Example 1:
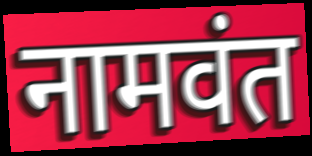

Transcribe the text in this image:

नामवंत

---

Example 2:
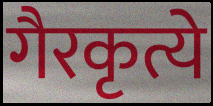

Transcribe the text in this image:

गैरकृत्ये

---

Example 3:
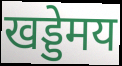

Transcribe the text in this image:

खड्डेमय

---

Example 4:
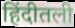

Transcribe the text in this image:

हिंदीतली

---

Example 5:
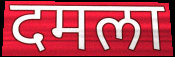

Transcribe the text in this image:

दमला